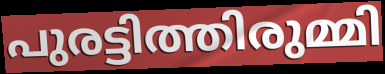
പുരട്ടിത്തിരുമ്മി